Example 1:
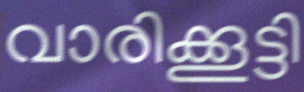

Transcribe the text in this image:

വാരിക്കൂട്ടി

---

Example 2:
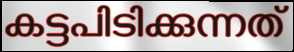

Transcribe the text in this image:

കട്ടപിടിക്കുന്നത്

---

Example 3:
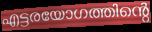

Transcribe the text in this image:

എട്ടരയോഗത്തിന്റെ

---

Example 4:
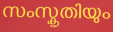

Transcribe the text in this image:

സംസ്കൃതിയും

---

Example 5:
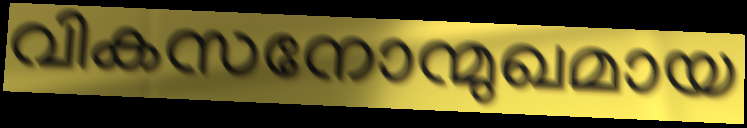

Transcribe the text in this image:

വികസനോന്മുഖമായ